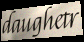
daughetr